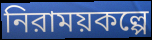
নিরাময়কল্পে